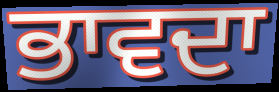
ਭਾਵਦਾ